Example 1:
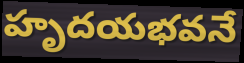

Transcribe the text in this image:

హృదయభవనే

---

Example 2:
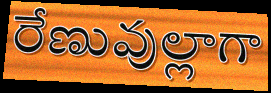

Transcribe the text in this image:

రేణువుల్లాగా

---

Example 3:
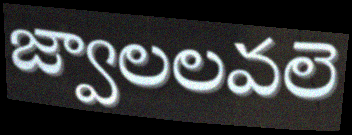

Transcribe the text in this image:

జ్వాలలవలె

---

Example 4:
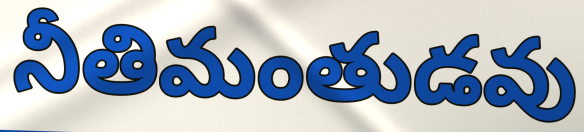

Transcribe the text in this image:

నీతిమంతుడవు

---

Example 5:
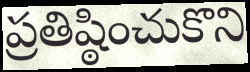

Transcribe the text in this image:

ప్రతిష్ఠించుకొని